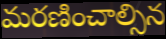
మరణించాల్సిన